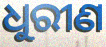
ଧୁରୀଣ